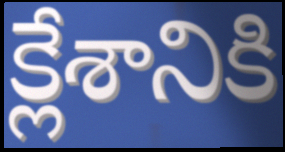
క్లేశానికి